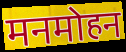
मनमोहन